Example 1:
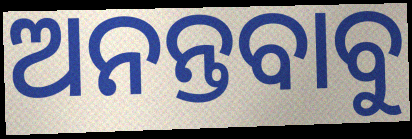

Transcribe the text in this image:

ଅନନ୍ତବାବୁ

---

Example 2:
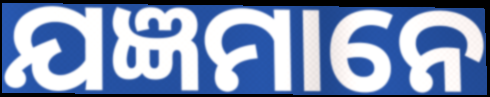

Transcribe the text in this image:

ଯଜ୍ଞମାନେ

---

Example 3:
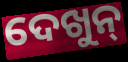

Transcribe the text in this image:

ଦେଖୁନ୍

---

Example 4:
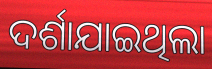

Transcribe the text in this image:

ଦର୍ଶାଯାଇଥିଲା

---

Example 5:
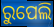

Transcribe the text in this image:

ରୁପେଲି